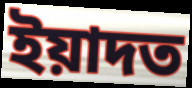
ইয়াদত